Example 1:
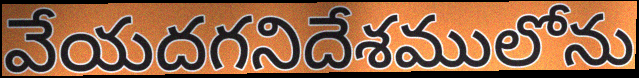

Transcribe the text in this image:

వేయదగనిదేశములోను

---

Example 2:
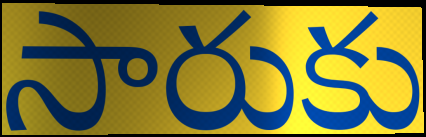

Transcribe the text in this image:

సారుకు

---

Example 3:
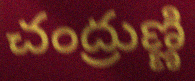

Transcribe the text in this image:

చంద్రుణ్ణి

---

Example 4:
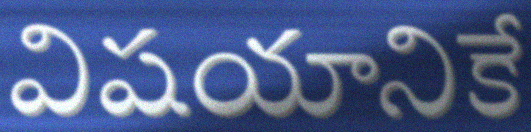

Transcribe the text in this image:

విషయానికే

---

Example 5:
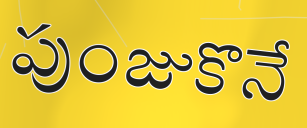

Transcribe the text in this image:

పుంజుకొనే